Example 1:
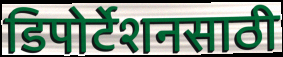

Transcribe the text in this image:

डिपोर्टेशनसाठी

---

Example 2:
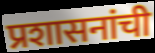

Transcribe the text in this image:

प्रशासनांची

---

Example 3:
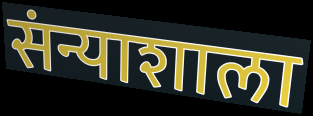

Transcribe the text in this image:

संन्याशाला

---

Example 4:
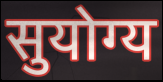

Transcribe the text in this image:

सुयोग्य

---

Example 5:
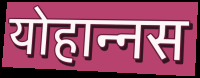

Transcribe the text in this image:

योहान्नस